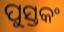
ପୁସ୍ତକଂ